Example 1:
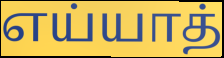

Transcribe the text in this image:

எய்யாத்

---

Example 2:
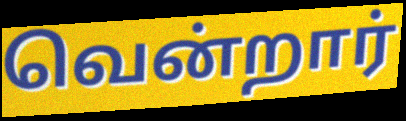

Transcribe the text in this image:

வென்றார்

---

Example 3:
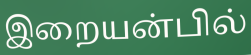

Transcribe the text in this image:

இறையன்பில்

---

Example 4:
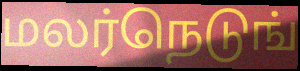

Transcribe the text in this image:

மலர்நெடுங்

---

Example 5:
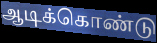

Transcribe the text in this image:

ஆடிக்கொண்டு